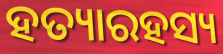
ହତ୍ୟାରହସ୍ୟ